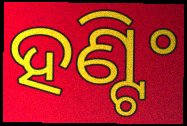
ହଣ୍ଟିଂ